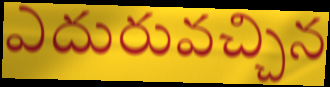
ఎదురువచ్చిన